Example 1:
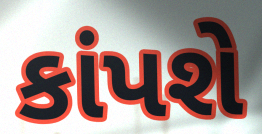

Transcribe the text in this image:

કાંપશે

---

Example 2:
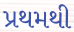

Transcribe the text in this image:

પ્રથમથી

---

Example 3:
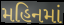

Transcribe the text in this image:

મહિનમાં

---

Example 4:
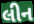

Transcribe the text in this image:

લીન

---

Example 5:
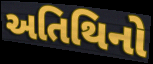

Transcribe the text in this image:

અતિથિનો